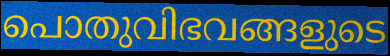
പൊതുവിഭവങ്ങളുടെ